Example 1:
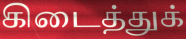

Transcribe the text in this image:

கிடைத்துக்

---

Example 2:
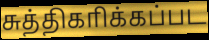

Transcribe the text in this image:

சுத்திகரிக்கப்பட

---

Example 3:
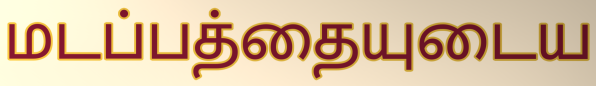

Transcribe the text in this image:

மடப்பத்தையுடைய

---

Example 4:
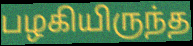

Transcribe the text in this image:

பழகியிருந்த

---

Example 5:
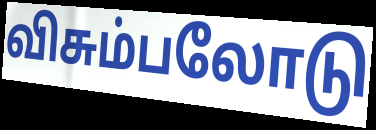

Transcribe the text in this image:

விசும்பலோடு